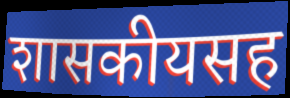
शासकीयसह